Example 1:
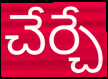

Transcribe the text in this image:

చేర్చే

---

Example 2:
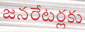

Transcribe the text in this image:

జనరేటర్లకు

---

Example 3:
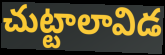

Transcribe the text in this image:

చుట్టాలావిడ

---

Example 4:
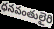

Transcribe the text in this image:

ధనవంతులైరి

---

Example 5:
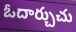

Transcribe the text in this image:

ఓదార్చుచు